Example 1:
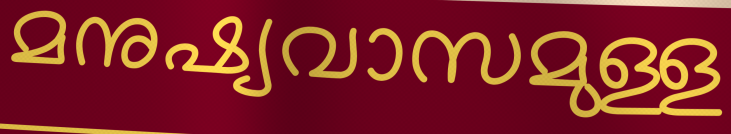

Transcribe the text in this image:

മനുഷ്യവാസമുള്ള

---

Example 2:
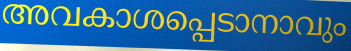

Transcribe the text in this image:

അവകാശപ്പെടാനാവും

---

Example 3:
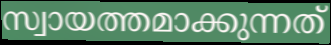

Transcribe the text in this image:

സ്വായത്തമാക്കുന്നത്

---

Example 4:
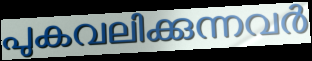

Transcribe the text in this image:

പുകവലിക്കുന്നവർ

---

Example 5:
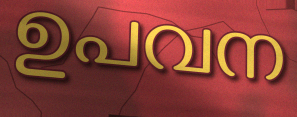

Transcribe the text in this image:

ഉപവന